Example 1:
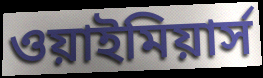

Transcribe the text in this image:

ওয়াইমিয়ার্স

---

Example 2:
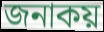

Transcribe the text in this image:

জনাকয়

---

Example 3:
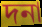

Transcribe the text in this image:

দনা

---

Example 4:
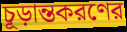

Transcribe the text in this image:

চূড়ান্তকরণের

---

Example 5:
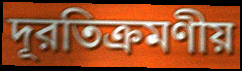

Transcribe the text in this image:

দূরতিক্রমণীয়